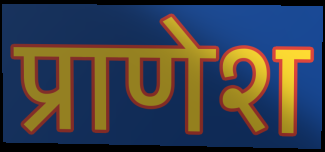
प्राणेश